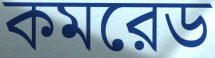
কমরেড